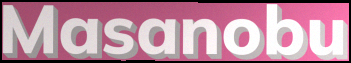
Masanobu